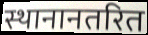
स्थानानतरित